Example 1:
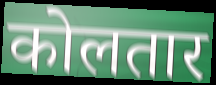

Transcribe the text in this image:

कोलतार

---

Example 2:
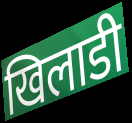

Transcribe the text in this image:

खिलाडी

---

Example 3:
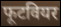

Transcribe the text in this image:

फूटवियर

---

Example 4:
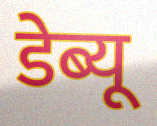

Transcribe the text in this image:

डेब्यू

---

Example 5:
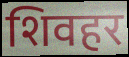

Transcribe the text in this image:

शिवहर